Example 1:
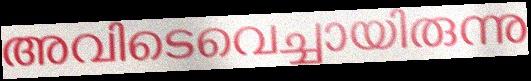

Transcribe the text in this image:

അവിടെവെച്ചായിരുന്നു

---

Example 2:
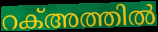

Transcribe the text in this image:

റക്അത്തിൽ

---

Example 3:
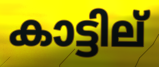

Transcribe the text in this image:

കാട്ടില്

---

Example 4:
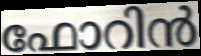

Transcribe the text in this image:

ഫോറിൻ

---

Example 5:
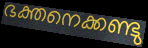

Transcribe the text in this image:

ഭക്തനെക്കണ്ടു